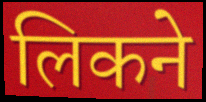
लिकने